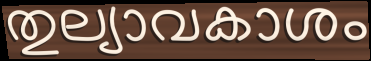
തുല്യാവകാശം